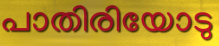
പാതിരിയോടു